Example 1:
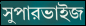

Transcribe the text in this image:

সুপারভাইজ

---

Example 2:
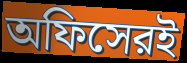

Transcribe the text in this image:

অফিসেরই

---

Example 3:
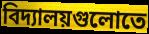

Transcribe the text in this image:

বিদ্যালয়গুলোতে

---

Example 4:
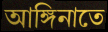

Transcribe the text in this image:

আঙ্গিনাতে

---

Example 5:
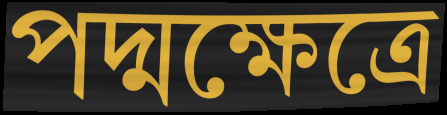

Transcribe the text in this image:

পদ্মক্ষেত্রে